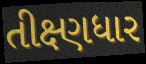
તીક્ષ્ણધાર